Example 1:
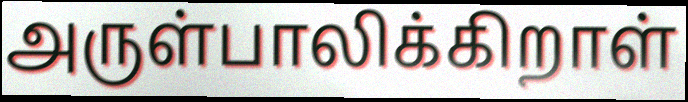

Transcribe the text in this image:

அருள்பாலிக்கிறாள்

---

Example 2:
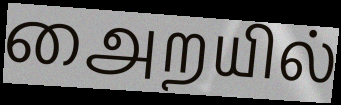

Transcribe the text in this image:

அைறயில்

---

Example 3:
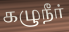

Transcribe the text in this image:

கழுநீர்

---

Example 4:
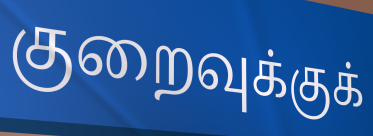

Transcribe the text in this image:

குறைவுக்குக்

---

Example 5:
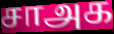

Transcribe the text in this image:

சாஅக